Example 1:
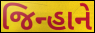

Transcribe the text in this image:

જિન્હાને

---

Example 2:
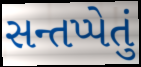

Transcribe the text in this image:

સન્તપ્પેતું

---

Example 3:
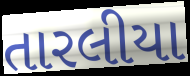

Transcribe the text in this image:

તારલીયા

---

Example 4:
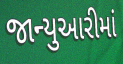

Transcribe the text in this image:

જાન્યુઆરીમાં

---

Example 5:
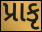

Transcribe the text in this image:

પ્રાકૃ